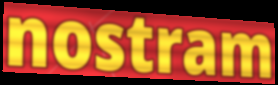
nostram